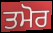
ਤਮੋਰ